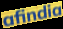
afindia